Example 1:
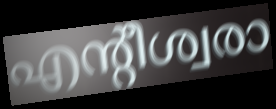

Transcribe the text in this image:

എന്റീശ്വരാ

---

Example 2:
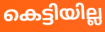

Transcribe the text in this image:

കെട്ടിയില്ല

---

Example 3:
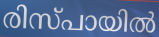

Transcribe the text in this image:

രിസ്പായിൽ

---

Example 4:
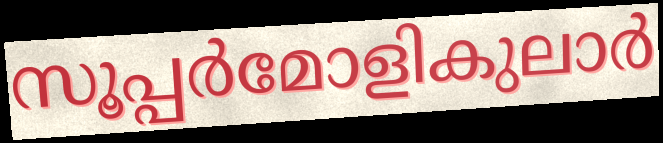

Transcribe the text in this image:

സൂപ്പർമോളികുലാർ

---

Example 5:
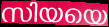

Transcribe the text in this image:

സിയയെ